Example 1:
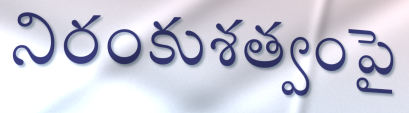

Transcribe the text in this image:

నిరంకుశత్వంపై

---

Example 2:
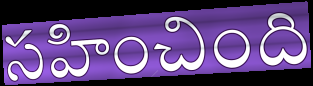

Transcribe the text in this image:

సహించింది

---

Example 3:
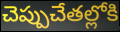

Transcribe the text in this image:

చెప్పుచేతల్లోకి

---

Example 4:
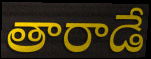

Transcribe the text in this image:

తారాడే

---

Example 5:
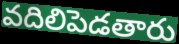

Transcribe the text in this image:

వదిలిపెడతారు